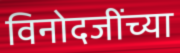
विनोदजींच्या